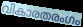
വികാരതരംഗം